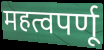
महत्‍वपर्णू